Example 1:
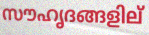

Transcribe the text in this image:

സൗഹൃദങ്ങളില്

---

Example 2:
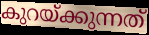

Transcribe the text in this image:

കുറയ്ക്കുന്നത്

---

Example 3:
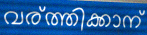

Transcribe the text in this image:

വര്ത്തിക്കാന്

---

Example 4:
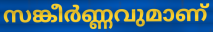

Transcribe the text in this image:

സങ്കീർണ്ണവുമാണ്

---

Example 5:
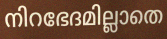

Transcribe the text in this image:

നിറഭേദമില്ലാതെ